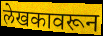
लेखकावरून